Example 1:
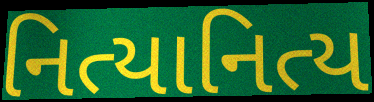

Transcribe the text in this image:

નિત્યાનિત્ય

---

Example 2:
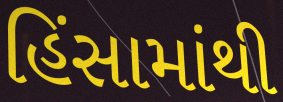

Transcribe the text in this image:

હિંસામાંથી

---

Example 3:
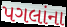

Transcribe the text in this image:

પગલાંના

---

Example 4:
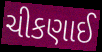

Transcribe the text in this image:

ચીકણાઈ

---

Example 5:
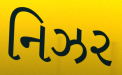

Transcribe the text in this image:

નિઝર